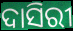
ଦାସିରୀ